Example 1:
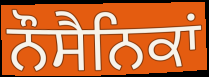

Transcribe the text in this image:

ਨੌਸੈਨਿਕਾਂ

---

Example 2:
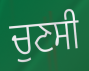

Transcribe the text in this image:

ਚੁਣਸੀ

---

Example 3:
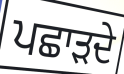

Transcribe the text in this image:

ਪਛਾੜਦੇ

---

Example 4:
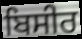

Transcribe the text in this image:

ਬਿਸੀਰ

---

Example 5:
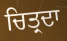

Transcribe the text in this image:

ਚਿਤ੍ਰਦਾ